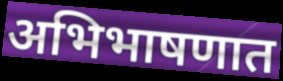
अभिभाषणात